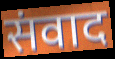
संवाद